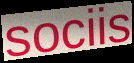
sociis